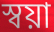
স্বয়া